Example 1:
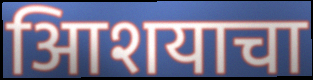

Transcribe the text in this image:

आिशयाचा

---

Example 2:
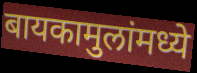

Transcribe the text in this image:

बायकामुलांमध्ये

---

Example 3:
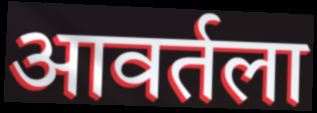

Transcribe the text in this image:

आवर्तला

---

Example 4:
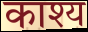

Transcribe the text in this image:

काश्य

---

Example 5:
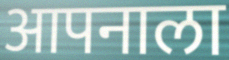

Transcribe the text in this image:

आपनाला